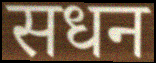
सधन